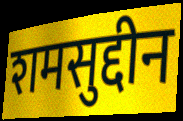
शमसुद्दीन